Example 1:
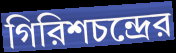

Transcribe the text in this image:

গিরিশচন্দ্রের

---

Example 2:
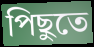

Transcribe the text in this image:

পিছুতে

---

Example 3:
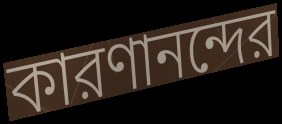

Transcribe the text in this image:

কারণানন্দের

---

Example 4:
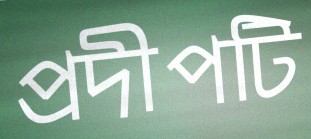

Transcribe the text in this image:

প্রদীপটি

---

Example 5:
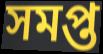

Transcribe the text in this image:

সমপ্ত